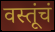
वस्तूंचं